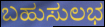
ಬಹುಸುಲಭ